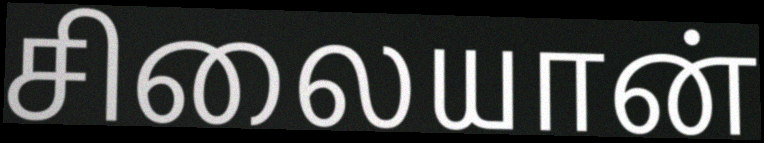
சிலையான்